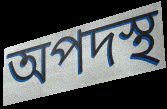
অপদস্থ